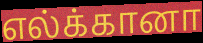
எல்க்கானா